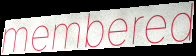
membered